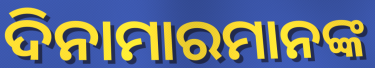
ଦିନାମାରମାନଙ୍କ